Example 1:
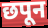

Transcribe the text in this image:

छपून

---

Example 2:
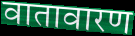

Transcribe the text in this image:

वातावारण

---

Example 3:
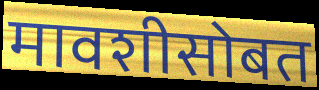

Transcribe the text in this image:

मावशीसोबत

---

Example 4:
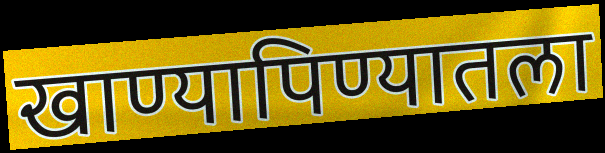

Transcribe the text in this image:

खाण्यापिण्यातला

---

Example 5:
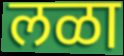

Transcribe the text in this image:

लळा